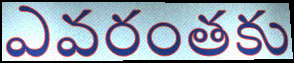
ఎవరంతకు